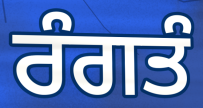
ਰੰਗਤੰ